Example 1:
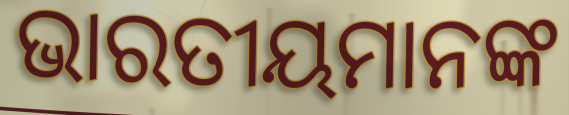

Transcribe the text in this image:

ଭାରତୀୟମାନଙ୍କ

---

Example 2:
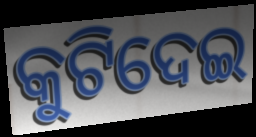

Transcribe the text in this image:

କୁଟିଦେଇ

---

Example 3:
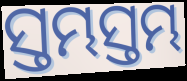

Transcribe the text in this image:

ସ୍ତମ୍ଭସ୍ତମ୍ଭ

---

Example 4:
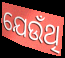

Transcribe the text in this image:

ଯେଉଁଥି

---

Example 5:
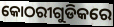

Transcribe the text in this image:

କୋଠରୀଗୁଡିକରେ